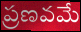
ప్రణవమే